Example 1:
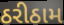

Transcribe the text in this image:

ઠરીઠામ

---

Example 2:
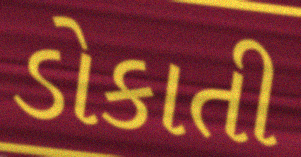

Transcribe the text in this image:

ડોકાતી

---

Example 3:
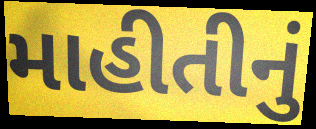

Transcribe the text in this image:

માહીતીનું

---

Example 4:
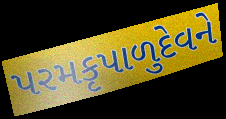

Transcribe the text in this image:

પરમકૃપાળુદેવને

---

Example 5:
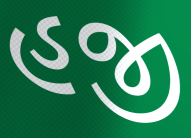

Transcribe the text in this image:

હજી